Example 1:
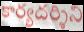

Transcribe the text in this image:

కార్యదర్శిని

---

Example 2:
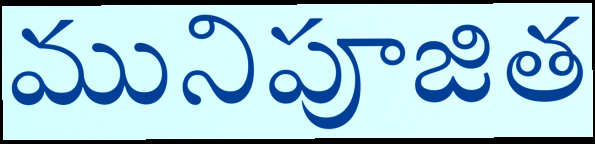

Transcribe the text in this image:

మునిపూజిత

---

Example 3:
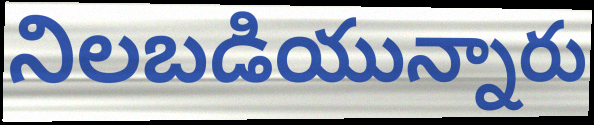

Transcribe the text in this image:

నిలబడియున్నారు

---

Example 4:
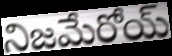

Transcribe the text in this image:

నిజమేరోయ్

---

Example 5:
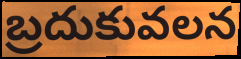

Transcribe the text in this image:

బ్రదుకువలన